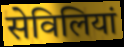
सेविलियां